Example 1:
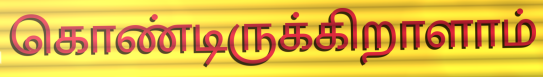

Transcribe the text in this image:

கொண்டிருக்கிறாளாம்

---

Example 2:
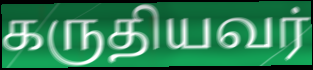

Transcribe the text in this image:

கருதியவர்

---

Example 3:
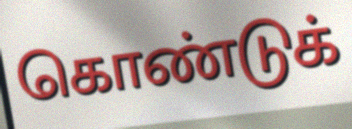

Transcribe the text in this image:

கொண்டுக்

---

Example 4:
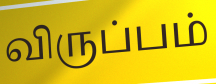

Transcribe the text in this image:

விருப்பம்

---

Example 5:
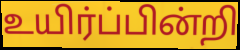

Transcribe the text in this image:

உயிர்ப்பின்றி